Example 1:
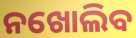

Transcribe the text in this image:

ନଖୋଲିବ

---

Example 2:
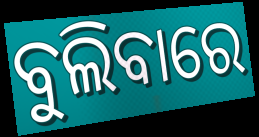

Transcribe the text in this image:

ବୁଲିବାରେ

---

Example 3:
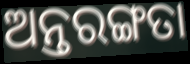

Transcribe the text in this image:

ଅନ୍ତରଙ୍ଗତା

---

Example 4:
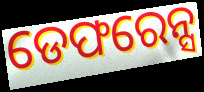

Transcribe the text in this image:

ଡେଫରେନ୍ସ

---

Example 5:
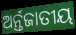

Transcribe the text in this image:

ଅର୍ନ୍ତଜାତୀୟ